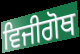
ਵਿਜੀਗੋਥ